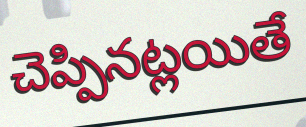
చెప్పినట్లయితే